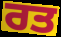
ਰਤ